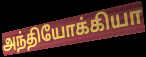
அந்தியோக்கியா